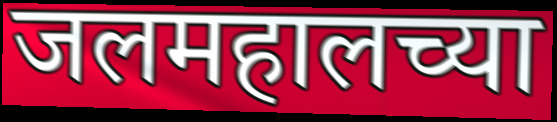
जलमहालच्या